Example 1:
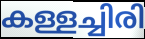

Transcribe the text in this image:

കള്ളച്ചിരി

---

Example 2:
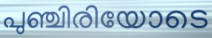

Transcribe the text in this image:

പുഞ്ചിരിയോടെ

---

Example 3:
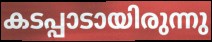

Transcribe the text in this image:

കടപ്പാടായിരുന്നു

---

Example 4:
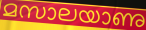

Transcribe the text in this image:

മസാലയാണു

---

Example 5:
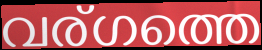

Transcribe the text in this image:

വര്ഗത്തെ